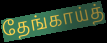
தேங்காய்த்